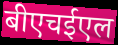
बीएचईएल